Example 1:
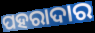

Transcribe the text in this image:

ପହରାଦାର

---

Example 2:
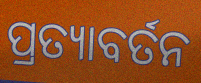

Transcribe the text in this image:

ପ୍ରତ୍ୟାବର୍ତନ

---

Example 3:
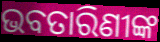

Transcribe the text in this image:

ଭବତାରିଣୀଙ୍କ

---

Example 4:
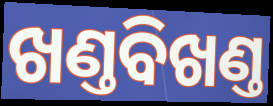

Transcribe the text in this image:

ଖଣ୍ତବିଖଣ୍ତ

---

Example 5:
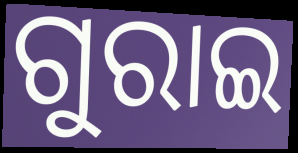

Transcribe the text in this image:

ଗୁରାଇ